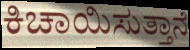
ಕಿಚಾಯಿಸುತ್ತಾನೆ